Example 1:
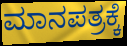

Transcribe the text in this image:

ಮಾನಪತ್ರಕ್ಕೆ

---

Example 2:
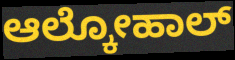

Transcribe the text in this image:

ಆಲ್ಕೋಹಾಲ್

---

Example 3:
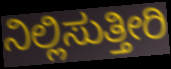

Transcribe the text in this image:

ನಿಲ್ಲಿಸುತ್ತೀರಿ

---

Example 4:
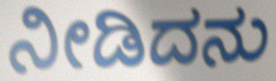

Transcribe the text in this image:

ನೀಡಿದನು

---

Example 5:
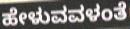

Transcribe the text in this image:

ಹೇಳುವವಳಂತೆ